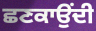
ਛਣਕਾਉਂਦੀ